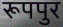
रूपपुर